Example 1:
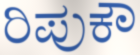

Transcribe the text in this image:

ರಿಪುಕೌ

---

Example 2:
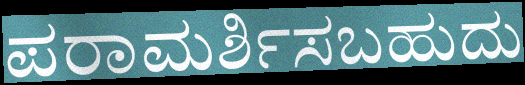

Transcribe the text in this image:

ಪರಾಮರ್ಶಿಸಬಹುದು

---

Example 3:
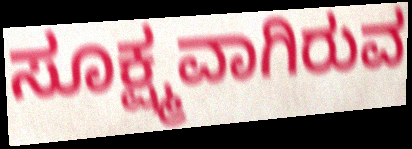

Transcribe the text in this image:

ಸೂಕ್ಷ್ಮವಾಗಿರುವ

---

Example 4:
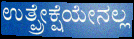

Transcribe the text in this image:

ಉತ್ಪ್ರೇಕ್ಷೆಯೇನಲ್ಲ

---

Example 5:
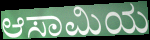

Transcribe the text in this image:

ಆಸಾಮಿಯ